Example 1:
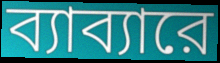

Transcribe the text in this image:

ব্যাব্যারে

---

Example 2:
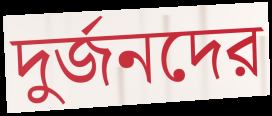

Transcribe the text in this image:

দুর্জনদের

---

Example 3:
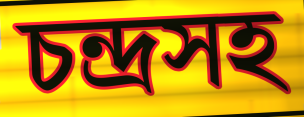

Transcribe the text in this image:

চন্দ্রসহ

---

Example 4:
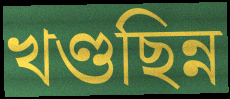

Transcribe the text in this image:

খণ্ডছিন্ন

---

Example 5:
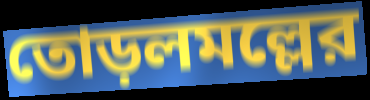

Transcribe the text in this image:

তোড়লমল্লের